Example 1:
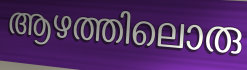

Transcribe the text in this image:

ആഴത്തിലൊരു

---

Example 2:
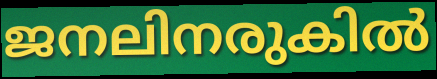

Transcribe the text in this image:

ജനലിനരുകിൽ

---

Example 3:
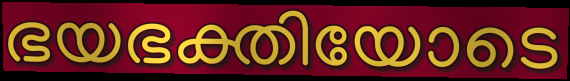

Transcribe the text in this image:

ഭയഭക്തിയോടെ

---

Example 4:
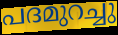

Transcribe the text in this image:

പദമുറച്ചു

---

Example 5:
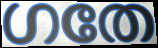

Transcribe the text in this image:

ഗതേ